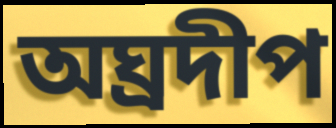
অঘ্ৰদীপ